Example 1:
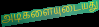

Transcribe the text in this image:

அடிகளையுடையது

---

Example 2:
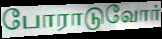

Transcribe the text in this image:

போராடுவோர்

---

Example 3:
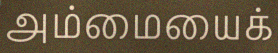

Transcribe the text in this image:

அம்மையைக்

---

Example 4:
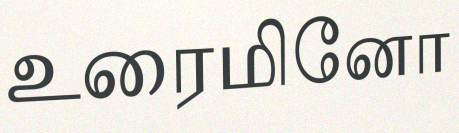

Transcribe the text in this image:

உரைமினோ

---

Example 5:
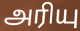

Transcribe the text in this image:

அரியு